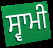
ਸ੍ਵਾਮੀ